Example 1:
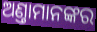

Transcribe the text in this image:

ଅଣ୍ତାମାନଙ୍କର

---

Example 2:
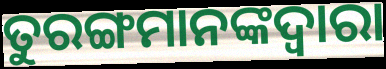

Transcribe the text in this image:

ତୁରଙ୍ଗମାନଙ୍କଦ୍ୱାରା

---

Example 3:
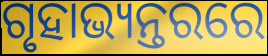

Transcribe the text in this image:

ଗୃହାଭ୍ୟନ୍ତରରେ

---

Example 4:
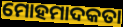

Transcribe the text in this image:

ମୋହମାଦକତା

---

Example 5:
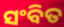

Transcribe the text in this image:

ସଂବିତ